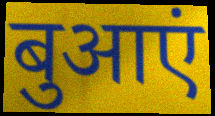
बुआएं